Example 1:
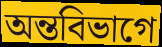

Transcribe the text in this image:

অন্তবিভাগে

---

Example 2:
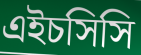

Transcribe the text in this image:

এইচসিসি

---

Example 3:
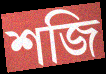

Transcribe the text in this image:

শজি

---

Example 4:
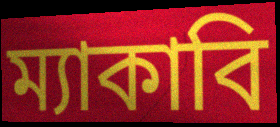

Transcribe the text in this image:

ম্যাকাবি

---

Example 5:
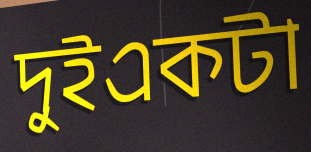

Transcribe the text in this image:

দুইএকটা